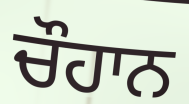
ਚੌਹਾਨ